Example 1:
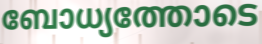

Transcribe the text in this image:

ബോധ്യത്തോടെ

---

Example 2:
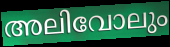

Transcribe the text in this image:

അലിവോലും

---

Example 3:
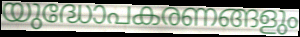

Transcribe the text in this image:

യുദ്ധോപകരണങ്ങളും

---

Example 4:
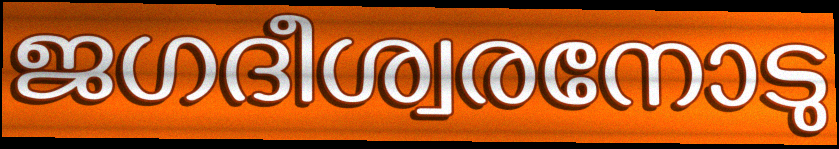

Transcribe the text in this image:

ജഗദീശ്വരനോടു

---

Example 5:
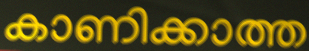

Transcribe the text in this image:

കാണിക്കാത്ത